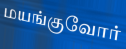
மயங்குவோர்